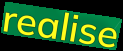
realise